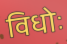
विधोः